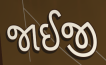
જાઈજી